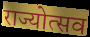
राज्योत्सव